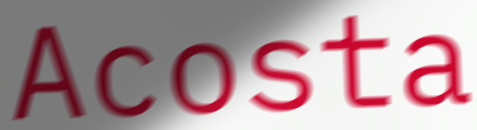
Acosta